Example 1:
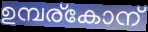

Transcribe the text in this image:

ഉമ്പര്കോന്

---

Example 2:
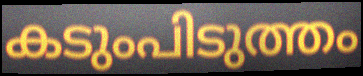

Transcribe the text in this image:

കടുംപിടുത്തം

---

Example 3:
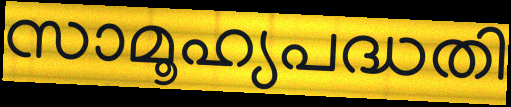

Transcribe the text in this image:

സാമൂഹ്യപദ്ധതി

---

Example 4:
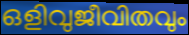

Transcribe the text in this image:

ഒളിവുജീവിതവും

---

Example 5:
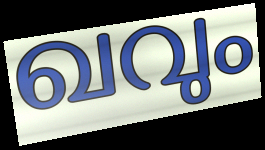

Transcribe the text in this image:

ഖവും